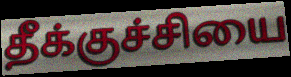
தீக்குச்சியை